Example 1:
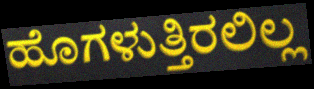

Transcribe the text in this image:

ಹೊಗಳುತ್ತಿರಲಿಲ್ಲ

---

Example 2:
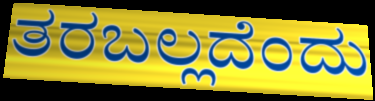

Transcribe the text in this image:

ತರಬಲ್ಲದೆಂದು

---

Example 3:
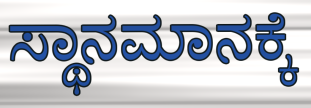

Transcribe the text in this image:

ಸ್ಥಾನಮಾನಕ್ಕೆ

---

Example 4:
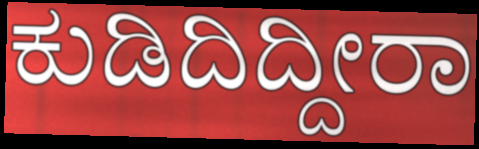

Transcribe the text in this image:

ಕುಡಿದಿದ್ದೀರಾ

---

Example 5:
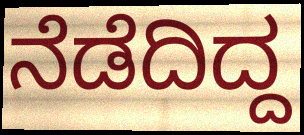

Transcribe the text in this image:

ನೆಡೆದಿದ್ದ